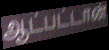
ஆட்பட்டான்